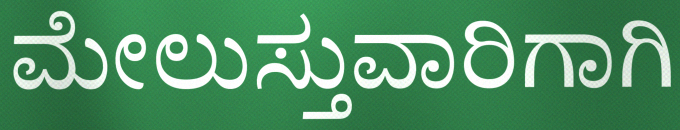
ಮೇಲುಸ್ತುವಾರಿಗಾಗಿ